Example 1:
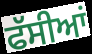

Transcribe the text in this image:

ਫੱਸੀਆਂ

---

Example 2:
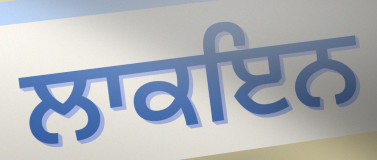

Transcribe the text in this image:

ਲਾਕਇਨ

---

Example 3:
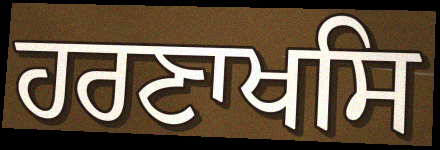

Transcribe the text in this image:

ਹਰਣਾਖਸਿ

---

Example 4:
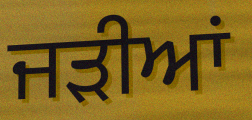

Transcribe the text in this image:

ਜੜੀਆਂ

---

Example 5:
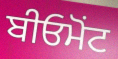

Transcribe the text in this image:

ਬੀਓਮੋਂਟ